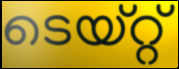
ടെയ്റ്റ്